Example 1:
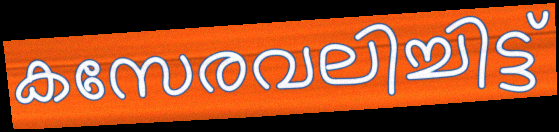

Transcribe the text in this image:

കസേരവലിച്ചിട്ട്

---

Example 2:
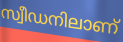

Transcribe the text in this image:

സ്വീഡനിലാണ്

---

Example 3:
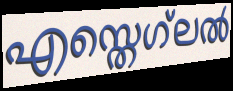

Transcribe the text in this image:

എസ്തെഗ്‌ലൽ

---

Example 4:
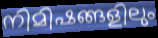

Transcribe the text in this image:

നിമിഷങ്ങളിലും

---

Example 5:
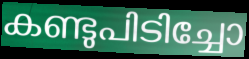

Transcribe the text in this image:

കണ്ടുപിടിച്ചോ